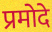
प्रमोदे